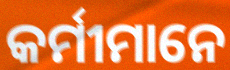
କର୍ମୀମାନେ